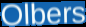
Olbers